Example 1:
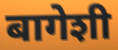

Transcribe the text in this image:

बागेशी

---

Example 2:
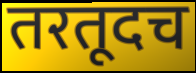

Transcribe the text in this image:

तरतूदच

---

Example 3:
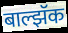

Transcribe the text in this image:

बाल्झॅक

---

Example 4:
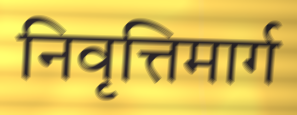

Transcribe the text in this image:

निवृत्तिमार्ग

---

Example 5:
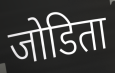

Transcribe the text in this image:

जोडिता